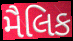
મૈલિક